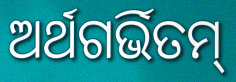
ଅର୍ଥଗର୍ଭିତମ୍